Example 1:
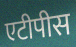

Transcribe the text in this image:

एटीपीस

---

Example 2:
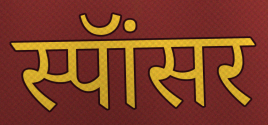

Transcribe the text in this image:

स्पॉंसर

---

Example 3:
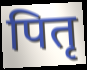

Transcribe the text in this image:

पितृ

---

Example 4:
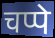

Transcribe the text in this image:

चप्पे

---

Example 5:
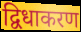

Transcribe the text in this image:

द्विधाकरण